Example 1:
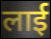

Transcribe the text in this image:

लाई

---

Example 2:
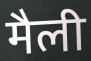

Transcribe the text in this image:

मैली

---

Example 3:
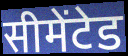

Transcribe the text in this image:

सीमेंटेड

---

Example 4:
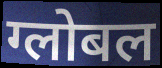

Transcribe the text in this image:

ग्लोबल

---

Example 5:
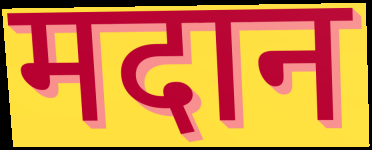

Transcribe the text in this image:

मदान